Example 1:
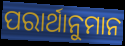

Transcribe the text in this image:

ପରାର୍ଥାନୁମାନ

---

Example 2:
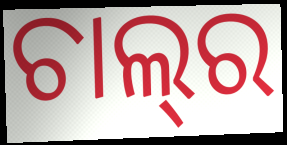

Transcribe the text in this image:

ଚାଲ୍‌ର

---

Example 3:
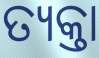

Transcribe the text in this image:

ତ୍ୟକ୍ତା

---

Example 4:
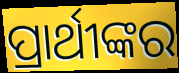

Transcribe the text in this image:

ପ୍ରାର୍ଥୀଙ୍କର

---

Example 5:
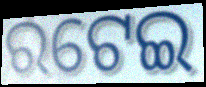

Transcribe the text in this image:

ରଟେଇ